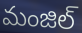
మంజిల్